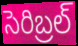
సెరిబ్రల్